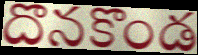
దొనకొండ